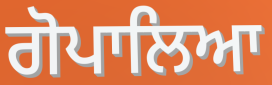
ਗੋਪਾਲਿਆ